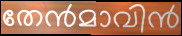
തേൻമാവിൻ